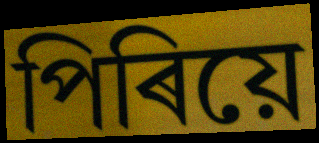
পিৰিয়ে